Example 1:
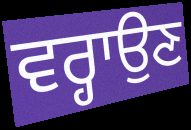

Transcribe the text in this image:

ਵਰ੍ਹਾਉਣ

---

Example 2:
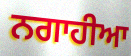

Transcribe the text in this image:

ਨਗਾਹੀਆ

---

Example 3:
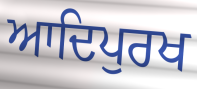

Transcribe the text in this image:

ਆਦਿਪੁਰਖ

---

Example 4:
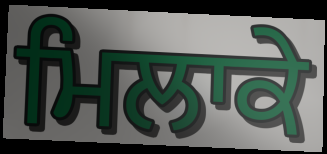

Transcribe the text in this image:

ਮਿਲਾਕੇ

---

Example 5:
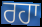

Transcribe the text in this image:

ਰਹਾ